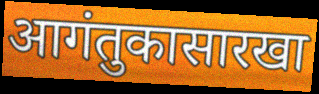
आगंतुकासारखा